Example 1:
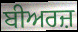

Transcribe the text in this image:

ਬੀਅਰਜ਼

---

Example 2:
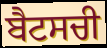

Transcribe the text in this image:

ਬੈਟਸਚੀ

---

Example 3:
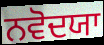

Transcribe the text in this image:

ਨਵੋਦਯਾ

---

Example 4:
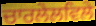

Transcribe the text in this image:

ਚਾਰਲੇਲਵਿਲੇ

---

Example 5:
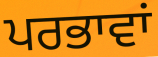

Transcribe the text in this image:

ਪਰਭਾਵਾਂ